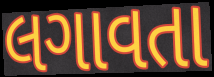
લગાવતા